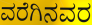
ವರೆಗಿನವರ